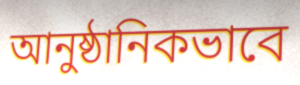
আনুষ্ঠানিকভাবে